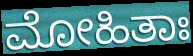
ಮೋಹಿತಾಃ